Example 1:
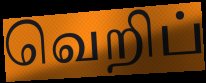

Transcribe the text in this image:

வெறிப்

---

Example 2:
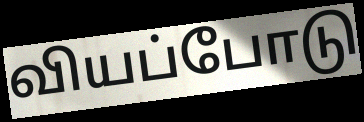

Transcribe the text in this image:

வியப்போடு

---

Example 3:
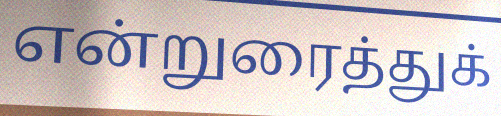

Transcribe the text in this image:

என்றுரைத்துக்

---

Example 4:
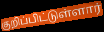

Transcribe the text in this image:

குறிப்பிட்டுள்ளார்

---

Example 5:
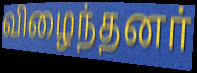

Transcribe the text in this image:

விழைந்தனர்